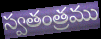
స్వతంత్రము